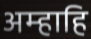
अम्हाहि